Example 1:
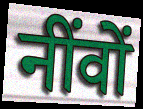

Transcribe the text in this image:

नींवों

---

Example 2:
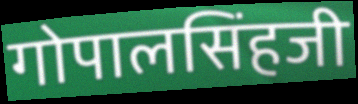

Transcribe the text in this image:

गोपालसिंहजी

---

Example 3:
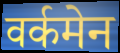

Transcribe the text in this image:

वर्कमेन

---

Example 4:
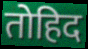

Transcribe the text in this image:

तोहिद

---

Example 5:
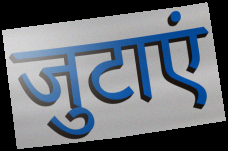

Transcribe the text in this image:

जुटाएं